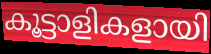
കൂട്ടാളികളായി